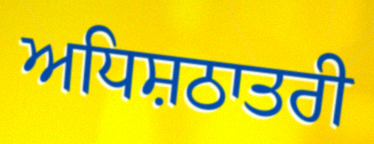
ਅਧਿਸ਼ਠਾਤਰੀ